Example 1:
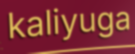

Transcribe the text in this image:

kaliyuga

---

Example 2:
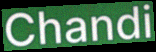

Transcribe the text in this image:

Chandi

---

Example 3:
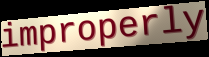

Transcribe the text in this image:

improperly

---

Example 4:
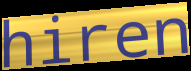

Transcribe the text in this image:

hiren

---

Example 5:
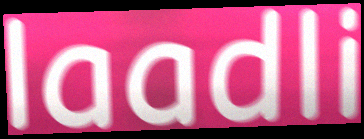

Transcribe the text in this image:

laadli